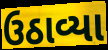
ઉઠાવ્યા